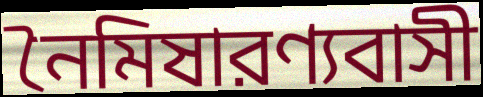
নৈমিষারণ্যবাসী